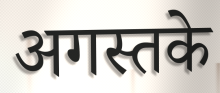
अगस्तके